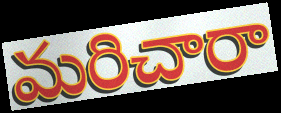
మరిచారా